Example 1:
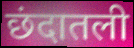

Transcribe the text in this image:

छंदातली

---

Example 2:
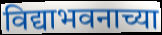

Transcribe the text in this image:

विद्याभवनाच्या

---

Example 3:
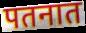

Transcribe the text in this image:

पतनात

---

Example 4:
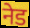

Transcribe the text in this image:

नेड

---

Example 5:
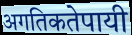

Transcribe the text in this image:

अगतिकतेपायी